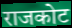
राजकोट